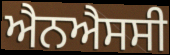
ਐਨਐਸਸੀ